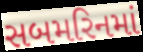
સબમરિનમાં